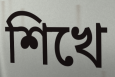
শিখে